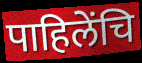
पाहिलेंचि